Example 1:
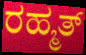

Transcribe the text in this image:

ರಹ್ಮತ್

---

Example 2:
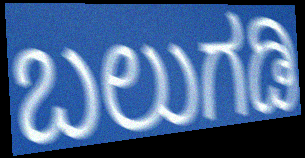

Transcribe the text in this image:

ಬಲುಗಡಿ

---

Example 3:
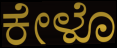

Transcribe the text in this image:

ಕೇಳೊ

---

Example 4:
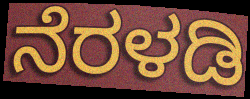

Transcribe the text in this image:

ನೆರಳಡಿ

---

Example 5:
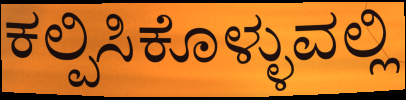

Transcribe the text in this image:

ಕಲ್ಪಿಸಿಕೊಳ್ಳುವಲ್ಲಿ